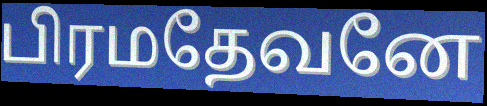
பிரமதேவனே